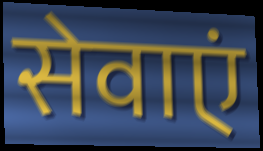
सेवाएं